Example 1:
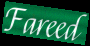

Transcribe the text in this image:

Fareed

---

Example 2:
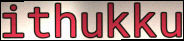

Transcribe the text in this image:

ithukku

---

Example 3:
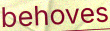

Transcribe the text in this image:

behoves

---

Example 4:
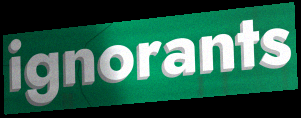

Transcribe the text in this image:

ignorants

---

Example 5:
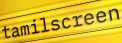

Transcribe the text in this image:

tamilscreen